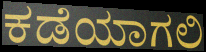
ಕಡೆಯಾಗಲಿ